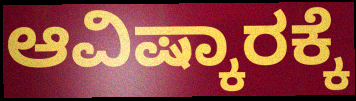
ಆವಿಷ್ಕಾರಕ್ಕೆ